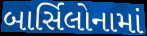
બાર્સિલોનામાં